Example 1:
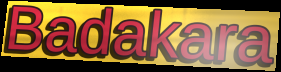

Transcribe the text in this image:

Badakara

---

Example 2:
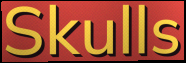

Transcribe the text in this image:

Skulls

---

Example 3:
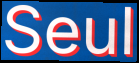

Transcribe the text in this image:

Seul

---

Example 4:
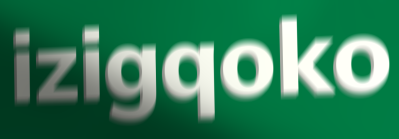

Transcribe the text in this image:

izigqoko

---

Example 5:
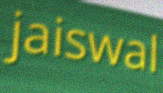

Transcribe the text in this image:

jaiswal